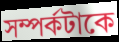
সম্পর্কটাকে